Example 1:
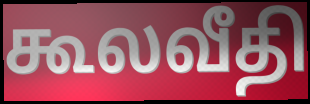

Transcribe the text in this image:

கூலவீதி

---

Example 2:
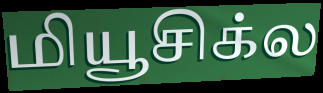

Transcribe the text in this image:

மியூசிக்ல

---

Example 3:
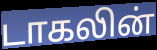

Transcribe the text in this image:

டாகலின்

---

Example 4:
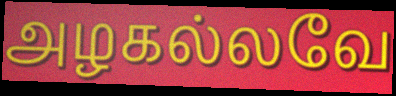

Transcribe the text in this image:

அழகல்லவே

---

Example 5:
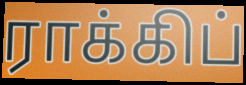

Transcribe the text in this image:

ராக்கிப்